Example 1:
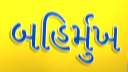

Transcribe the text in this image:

બહિર્મુખ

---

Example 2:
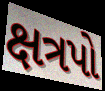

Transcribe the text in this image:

ક્ષત્રપો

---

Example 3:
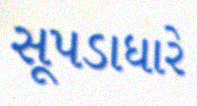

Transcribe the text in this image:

સૂપડાધારે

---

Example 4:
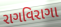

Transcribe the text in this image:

રાગવિરાગા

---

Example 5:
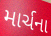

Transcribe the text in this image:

માર્ચના